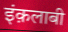
इंक़लाबी